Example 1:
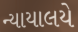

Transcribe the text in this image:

ન્યાયાલયે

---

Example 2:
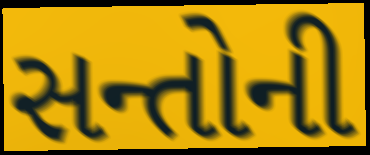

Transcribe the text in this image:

સન્તોની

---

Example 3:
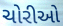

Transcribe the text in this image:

ચોરીઓ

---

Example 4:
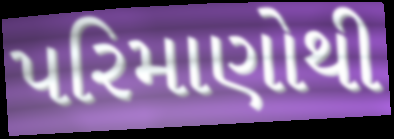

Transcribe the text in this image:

પરિમાણોથી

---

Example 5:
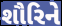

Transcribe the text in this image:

શૌરિને